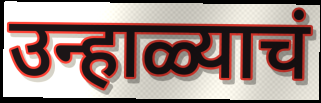
उन्हाळ्याचं